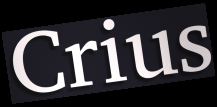
Crius